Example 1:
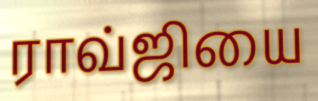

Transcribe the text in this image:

ராவ்ஜியை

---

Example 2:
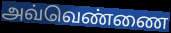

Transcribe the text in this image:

அவ்வெண்ணை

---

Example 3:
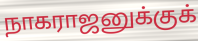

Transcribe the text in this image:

நாகராஜனுக்குக்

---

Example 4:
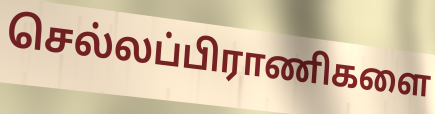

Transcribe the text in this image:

செல்லப்பிராணிகளை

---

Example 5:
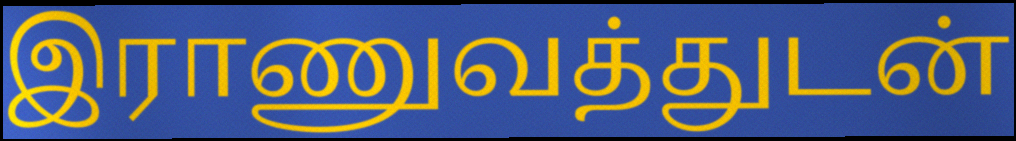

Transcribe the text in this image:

இராணுவத்துடன்